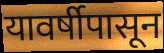
यावर्षीपासून